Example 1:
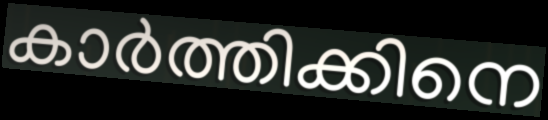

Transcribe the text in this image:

കാർത്തിക്കിനെ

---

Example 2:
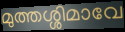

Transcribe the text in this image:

മുത്തശ്ശിമാവേ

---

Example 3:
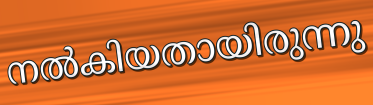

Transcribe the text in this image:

നൽകിയതായിരുന്നു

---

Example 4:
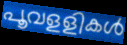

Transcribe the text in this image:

പൂവളളികൾ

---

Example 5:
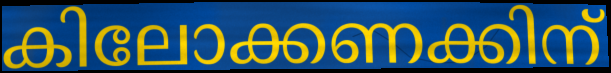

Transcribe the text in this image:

കിലോക്കണക്കിന്